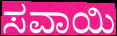
ಸವಾಯಿ